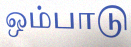
ஒம்பாடு